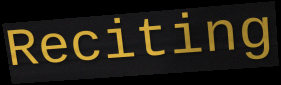
Reciting